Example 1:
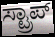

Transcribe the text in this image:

ಸ್ಟ್ರಾಪ್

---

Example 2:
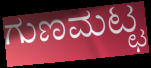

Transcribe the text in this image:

ಗುಣಮಟ್ಟ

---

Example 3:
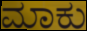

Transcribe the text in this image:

ಮಾಕು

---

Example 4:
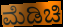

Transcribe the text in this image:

ಮೆಡಿಚಿ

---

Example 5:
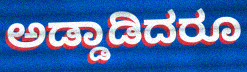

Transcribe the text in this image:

ಅಡ್ಡಾಡಿದರೂ